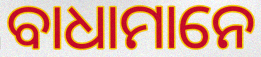
ବାଧାମାନେ